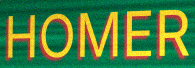
HOMER